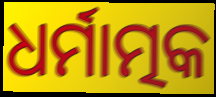
ଧର୍ମାତ୍ମକ